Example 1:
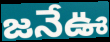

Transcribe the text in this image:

జనేఊ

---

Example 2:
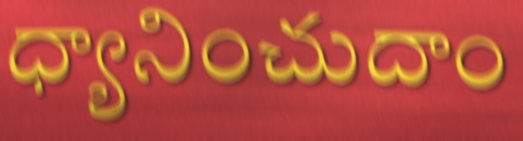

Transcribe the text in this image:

ధ్యానించుదాం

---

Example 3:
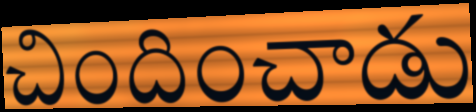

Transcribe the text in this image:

చిందించాడు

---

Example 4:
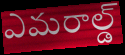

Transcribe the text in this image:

ఎమరాల్డ్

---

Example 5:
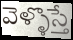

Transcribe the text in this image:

వెళ్ళొస్తే